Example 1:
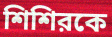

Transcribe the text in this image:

শিশিরকে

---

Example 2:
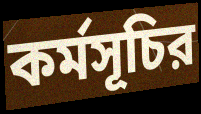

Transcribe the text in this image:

কর্মসূচির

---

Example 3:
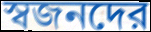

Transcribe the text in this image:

স্বজনদের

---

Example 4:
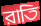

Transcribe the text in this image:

রাতি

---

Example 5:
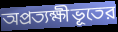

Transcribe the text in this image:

অপ্রত্যক্ষীভূতের